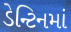
ડેન્ટિનમાં